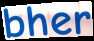
bher